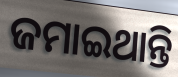
ଜମାଇଥାନ୍ତି